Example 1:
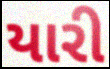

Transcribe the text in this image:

યારી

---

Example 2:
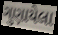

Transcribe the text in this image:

ગુણાયેલા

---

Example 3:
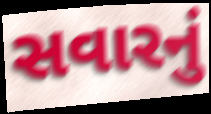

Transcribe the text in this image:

સવારનું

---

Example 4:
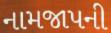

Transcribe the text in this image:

નામજાપની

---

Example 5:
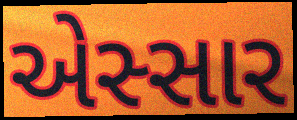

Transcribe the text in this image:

એસ્સાર